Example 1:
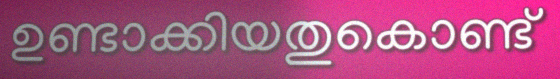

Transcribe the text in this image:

ഉണ്ടാക്കിയതുകൊണ്ട്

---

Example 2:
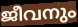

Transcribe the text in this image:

ജീവനും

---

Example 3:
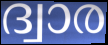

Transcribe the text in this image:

ദ്വാര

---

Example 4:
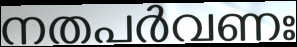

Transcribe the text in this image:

നതപർവണഃ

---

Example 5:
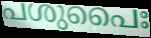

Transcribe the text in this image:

പശുപൈഃ